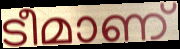
ടീമാണ്